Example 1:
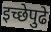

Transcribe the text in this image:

इच्छेपुढे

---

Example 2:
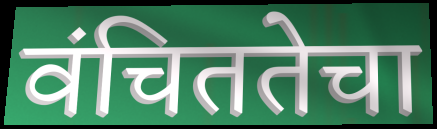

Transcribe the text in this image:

वंचिततेचा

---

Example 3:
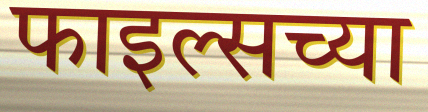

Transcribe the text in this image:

फाइल्सच्या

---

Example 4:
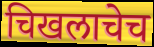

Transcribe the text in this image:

चिखलाचेच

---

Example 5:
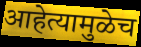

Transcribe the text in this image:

आहेत्यामुळेच